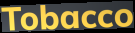
Tobacco